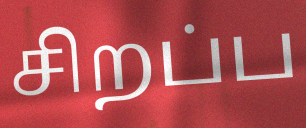
சிறப்ப